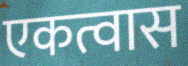
एकत्वास